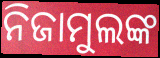
ନିଜାମୁଲଙ୍କ